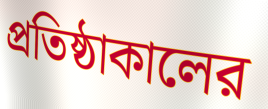
প্রতিষ্ঠাকালের